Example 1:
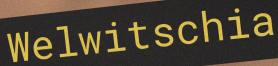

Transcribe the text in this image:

Welwitschia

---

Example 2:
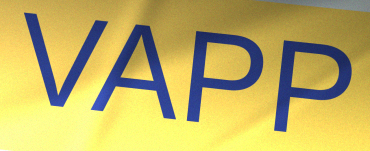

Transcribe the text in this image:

VAPP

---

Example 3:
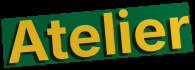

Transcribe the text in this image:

Atelier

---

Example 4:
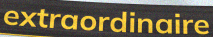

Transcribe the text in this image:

extraordinaire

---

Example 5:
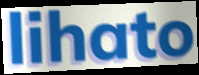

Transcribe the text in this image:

lihato